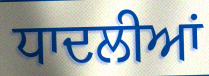
ਧਾਦਲੀਆਂ